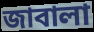
জাবালা